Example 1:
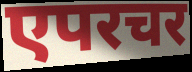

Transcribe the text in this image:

एपरचर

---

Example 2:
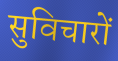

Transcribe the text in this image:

सुविचारों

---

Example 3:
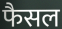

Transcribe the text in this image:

फैसल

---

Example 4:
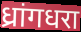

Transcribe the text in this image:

ध्रांगधरा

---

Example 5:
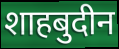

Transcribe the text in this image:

शाहबुदीन